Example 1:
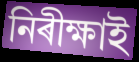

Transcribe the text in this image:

নিৰীক্ষাই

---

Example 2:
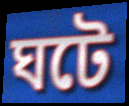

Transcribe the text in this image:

ঘটে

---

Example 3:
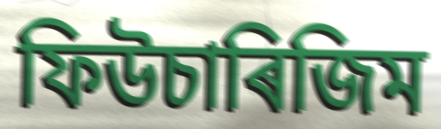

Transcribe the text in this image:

ফিউচাৰিজিম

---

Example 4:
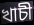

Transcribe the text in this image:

খাচী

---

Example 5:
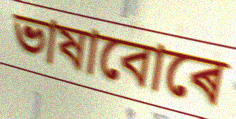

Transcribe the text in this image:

ভাষাবোৰে